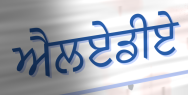
ਐਲਏਡੀਏ